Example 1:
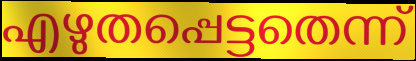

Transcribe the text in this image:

എഴുതപ്പെട്ടതെന്ന്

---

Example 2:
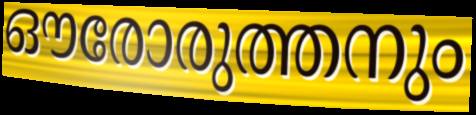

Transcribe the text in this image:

ഔരോരുത്തനും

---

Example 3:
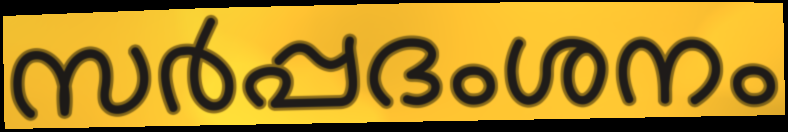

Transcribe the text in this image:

സർപ്പദംശനം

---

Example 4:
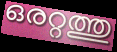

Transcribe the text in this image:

ഒരറ്റത്തു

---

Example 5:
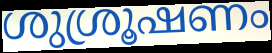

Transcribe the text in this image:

ശുശ്രൂഷണം